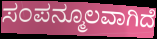
ಸಂಪನ್ಮೂಲವಾಗಿದೆ